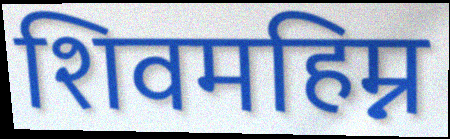
शिवमहिम्न